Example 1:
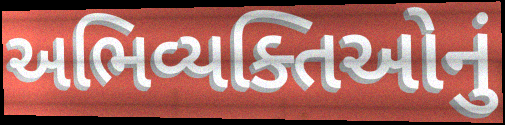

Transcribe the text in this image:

અભિવ્યક્તિઓનું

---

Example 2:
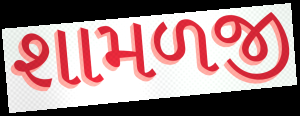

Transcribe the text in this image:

શામળજી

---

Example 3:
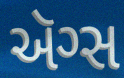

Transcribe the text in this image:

ઍગ્સ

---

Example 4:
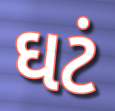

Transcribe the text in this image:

ઘટં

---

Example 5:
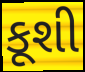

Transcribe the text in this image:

કૂશી